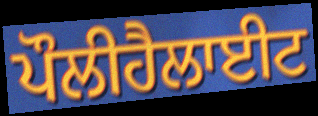
ਪੌਲੀਹੈਲਾਈਟ